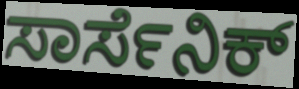
ಸಾರ್ಸೆನಿಕ್